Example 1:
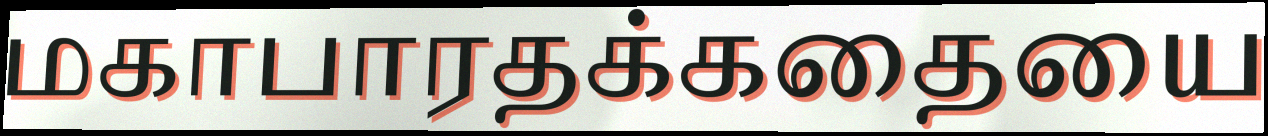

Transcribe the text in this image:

மகாபாரதக்கதையை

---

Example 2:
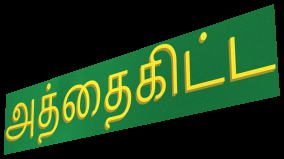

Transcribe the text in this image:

அத்தைகிட்ட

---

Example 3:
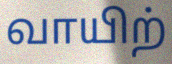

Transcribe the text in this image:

வாயிற்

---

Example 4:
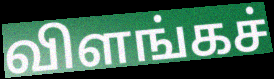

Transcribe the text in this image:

விளங்கச்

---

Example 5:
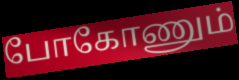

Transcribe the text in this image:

போகோணும்